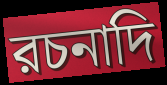
রচনাদি